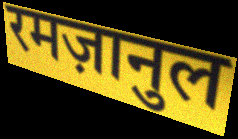
रमज़ानुल